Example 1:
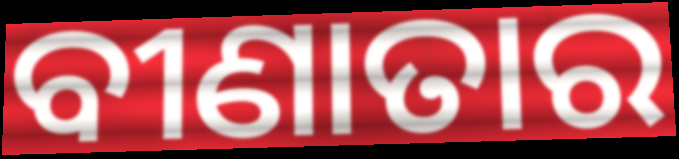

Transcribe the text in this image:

ବୀଣାତାର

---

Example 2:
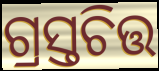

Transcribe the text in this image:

ଗ୍ରସ୍ତଚିତ୍ତ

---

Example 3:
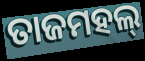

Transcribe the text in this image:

ତାଜମହଲ୍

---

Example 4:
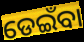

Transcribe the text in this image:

ଡେଇଁବା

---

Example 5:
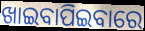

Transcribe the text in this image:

ଖାଇବାପିଇବାରେ